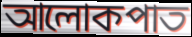
আলোকপাত